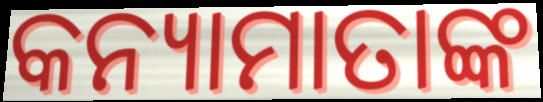
କନ୍ୟାମାତାଙ୍କ